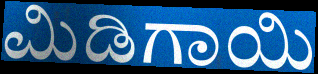
ಮಿಡಿಗಾಯಿ